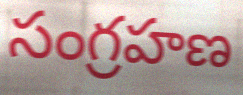
సంగ్రహణ